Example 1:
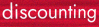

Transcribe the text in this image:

discounting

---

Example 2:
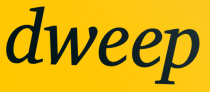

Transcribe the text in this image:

dweep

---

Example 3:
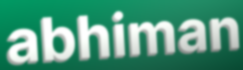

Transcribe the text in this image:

abhiman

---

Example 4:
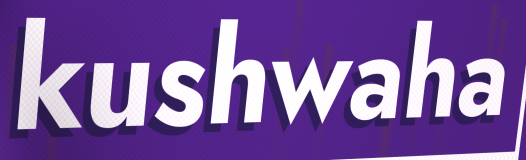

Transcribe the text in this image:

kushwaha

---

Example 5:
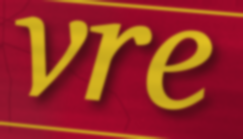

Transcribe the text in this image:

vre